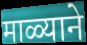
माळ्याने